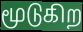
மூடுகிற